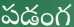
పడంగ